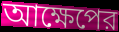
আক্ষেপের